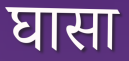
घासा